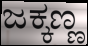
ಜಕ್ಕಣ್ಣ